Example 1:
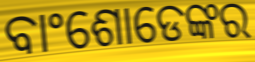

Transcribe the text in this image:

ବାଂଶୋଡେଙ୍କର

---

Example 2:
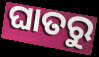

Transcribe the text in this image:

ଘାତରୁ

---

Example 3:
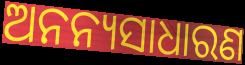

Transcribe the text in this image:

ଅନନ୍ୟସାଧାରଣ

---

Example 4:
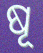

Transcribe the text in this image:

ଷୂ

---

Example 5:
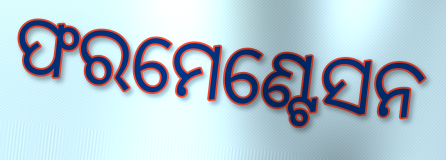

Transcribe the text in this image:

ଫରମେଣ୍ଟେସନ